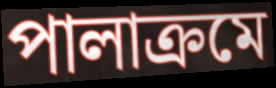
পালাক্রমে